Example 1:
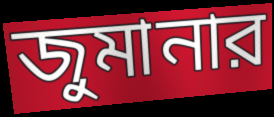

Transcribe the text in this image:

জুমানার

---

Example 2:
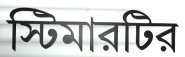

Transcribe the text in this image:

স্টিমারটির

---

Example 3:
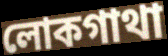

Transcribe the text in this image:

লোকগাথা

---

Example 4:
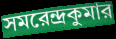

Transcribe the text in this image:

সমরেন্দ্রকুমার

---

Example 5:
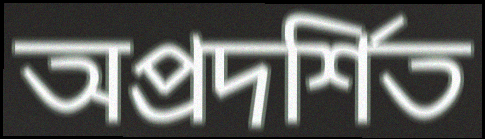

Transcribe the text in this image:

অপ্রদর্শিত